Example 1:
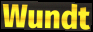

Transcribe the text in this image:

Wundt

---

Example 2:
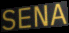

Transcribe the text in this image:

SENA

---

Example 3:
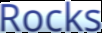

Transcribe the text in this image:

Rocks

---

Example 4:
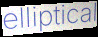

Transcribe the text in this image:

elliptical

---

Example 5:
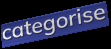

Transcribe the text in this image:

categorise